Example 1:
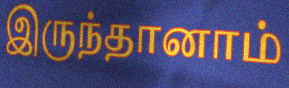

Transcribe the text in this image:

இருந்தானாம்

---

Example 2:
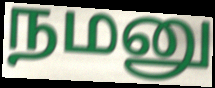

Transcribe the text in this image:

நமனு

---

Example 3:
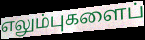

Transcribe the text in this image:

எலும்புகளைப்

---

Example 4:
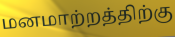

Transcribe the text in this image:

மனமாற்றத்திற்கு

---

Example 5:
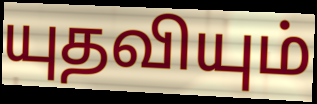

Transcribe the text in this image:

யுதவியும்